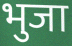
भुजा